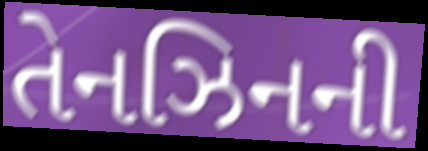
તેનઝિનની